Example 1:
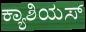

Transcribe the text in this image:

ಕ್ಯಾಶಿಯಸ್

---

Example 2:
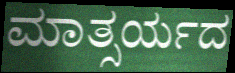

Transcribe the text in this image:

ಮಾತ್ಸರ್ಯದ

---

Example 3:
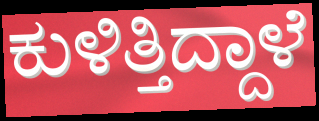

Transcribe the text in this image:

ಕುಳಿತ್ತಿದ್ದಾಳೆ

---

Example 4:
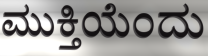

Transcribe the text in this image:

ಮುಕ್ತಿಯೆಂದು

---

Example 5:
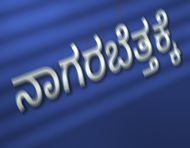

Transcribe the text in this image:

ನಾಗರಬೆತ್ತಕ್ಕೆ